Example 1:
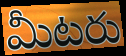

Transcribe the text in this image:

మీటరు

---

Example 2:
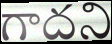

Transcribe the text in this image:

గాదని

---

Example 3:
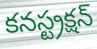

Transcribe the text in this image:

కనస్ట్రక్షన్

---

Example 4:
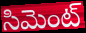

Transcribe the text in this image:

సిమెంట్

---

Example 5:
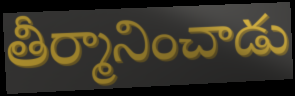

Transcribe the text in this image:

తీర్మానించాడు